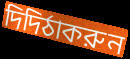
দিদিঠাকরুন